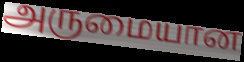
அருமையான